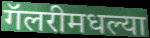
गॅलरीमधल्या